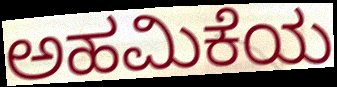
ಅಹಮಿಕೆಯ